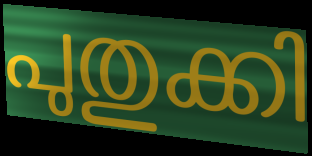
പുതുക്കി